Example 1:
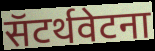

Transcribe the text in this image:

सॅटर्थवेटना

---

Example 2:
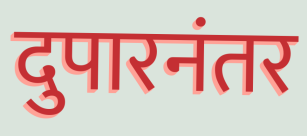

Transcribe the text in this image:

दुपारनंतर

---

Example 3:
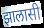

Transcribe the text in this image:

झालासी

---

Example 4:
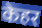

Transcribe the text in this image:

केहर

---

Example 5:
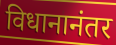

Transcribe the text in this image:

विधानानंतर